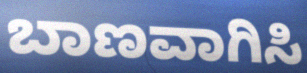
ಬಾಣವಾಗಿಸಿ